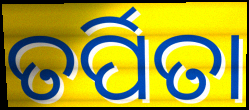
ତର୍ପିତା